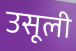
उसूली